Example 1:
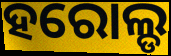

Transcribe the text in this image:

ହରୋଲ୍ଡ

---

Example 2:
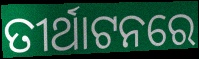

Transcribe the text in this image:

ତୀର୍ଥାଟନରେ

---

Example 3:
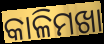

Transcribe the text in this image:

କାଳିମଖା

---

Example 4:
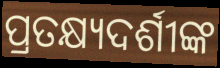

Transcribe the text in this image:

ପ୍ରତକ୍ଷ୍ୟଦର୍ଶୀଙ୍କ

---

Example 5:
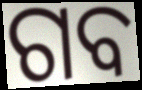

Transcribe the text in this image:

ଗବ